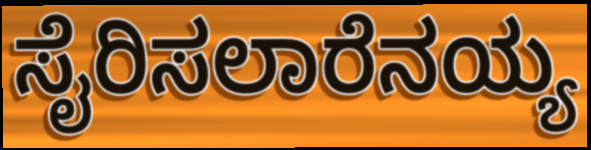
ಸೈರಿಸಲಾರೆನಯ್ಯ